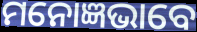
ମନୋଜ୍ଞଭାବେ